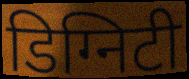
डिग्निटी